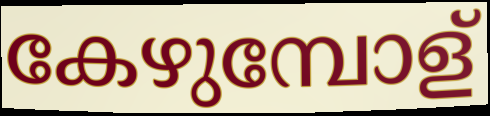
കേഴുമ്പോള്